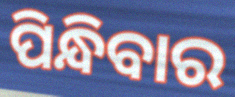
ପିନ୍ଧିବାର